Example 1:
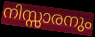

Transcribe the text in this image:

നിസ്സാരനും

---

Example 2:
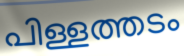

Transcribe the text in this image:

പിള്ളത്തടം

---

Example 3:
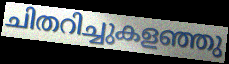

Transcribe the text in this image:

ചിതറിച്ചുകളഞ്ഞു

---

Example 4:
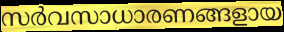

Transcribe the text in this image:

സർവസാധാരണങ്ങളായ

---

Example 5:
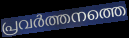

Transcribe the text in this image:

പ്രവർത്തനത്തെ